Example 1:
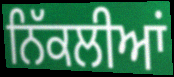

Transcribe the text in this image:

ਨਿੱਕਲੀਆਂ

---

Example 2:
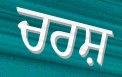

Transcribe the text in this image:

ਚਰਸ਼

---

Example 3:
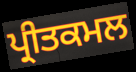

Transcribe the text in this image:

ਪ੍ਰੀਤਕਮਲ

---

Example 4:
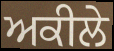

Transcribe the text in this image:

ਅਕੀਲੇ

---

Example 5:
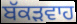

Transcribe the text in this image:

ਬੱਕੜਵਾਹ